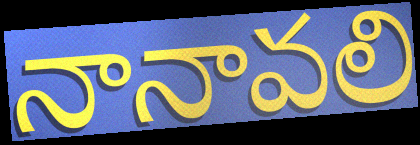
నానావలి